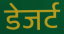
डेजर्ट